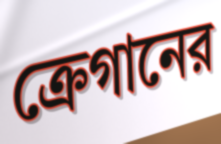
ক্রেগানের